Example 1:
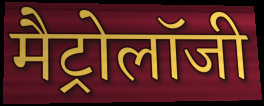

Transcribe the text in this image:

मैट्रोलॉजी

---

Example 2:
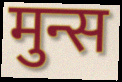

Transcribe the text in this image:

मुन्स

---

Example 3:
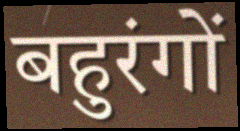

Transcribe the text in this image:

बहुरंगों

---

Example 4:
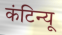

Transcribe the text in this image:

कंटिन्यू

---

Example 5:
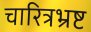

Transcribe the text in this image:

चारित्रभ्रष्ट